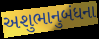
અશુભાનુબંધના